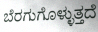
ಬೆರಗುಗೊಳ್ಳುತ್ತದೆ